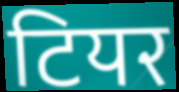
टियर